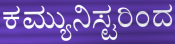
ಕಮ್ಯುನಿಸ್ಟರಿಂದ